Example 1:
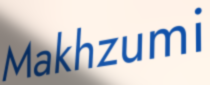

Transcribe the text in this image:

Makhzumi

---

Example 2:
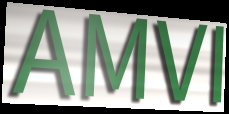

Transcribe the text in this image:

AMVI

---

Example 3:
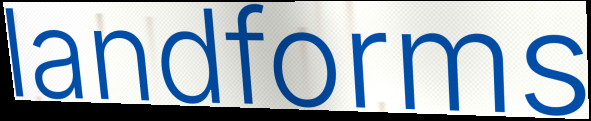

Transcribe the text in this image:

landforms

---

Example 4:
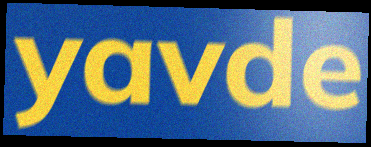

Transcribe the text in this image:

yavde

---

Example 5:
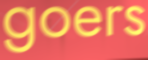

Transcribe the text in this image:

goers